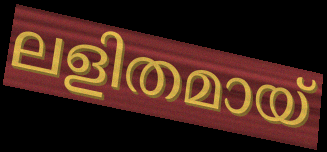
ലളിതമായ്